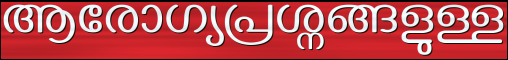
ആരോഗ്യപ്രശ്നങ്ങളുള്ള